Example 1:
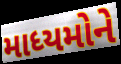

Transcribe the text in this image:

માધ્યમોને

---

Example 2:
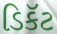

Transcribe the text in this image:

ડિકૅટ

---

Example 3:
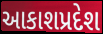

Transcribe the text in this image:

આકાશપ્રદેશ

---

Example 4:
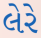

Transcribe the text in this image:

લેરે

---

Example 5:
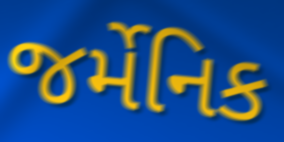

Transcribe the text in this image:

જર્મેનિક